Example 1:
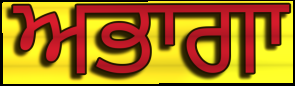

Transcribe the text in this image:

ਅਭਾਗਾ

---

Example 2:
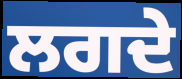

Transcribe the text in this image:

ਲਗਦੇ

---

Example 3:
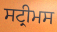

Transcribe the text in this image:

ਸਟ੍ਰੀਮਸ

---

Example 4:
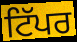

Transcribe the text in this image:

ਟਿੱਪਰ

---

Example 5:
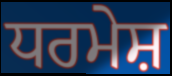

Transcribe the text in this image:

ਧਰਮੇਸ਼